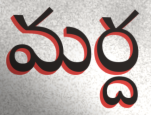
మర్ద